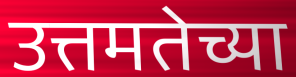
उत्तमतेच्या